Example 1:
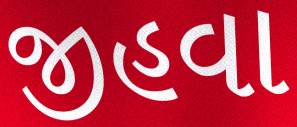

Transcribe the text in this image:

જીહવા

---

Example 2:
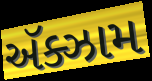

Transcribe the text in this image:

ઍક્ઝામ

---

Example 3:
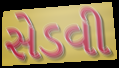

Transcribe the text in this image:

સેડવી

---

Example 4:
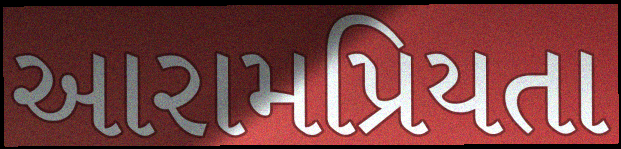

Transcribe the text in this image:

આરામપ્રિયતા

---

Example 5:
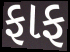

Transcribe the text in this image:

ફાફ